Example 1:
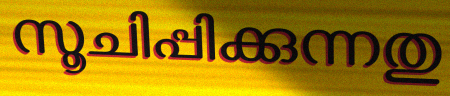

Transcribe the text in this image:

സൂചിപ്പിക്കുന്നതു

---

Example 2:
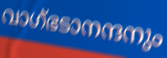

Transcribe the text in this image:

വാഗ്ഭടാനന്ദനും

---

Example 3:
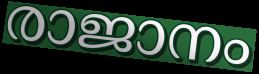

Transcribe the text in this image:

രാജാനം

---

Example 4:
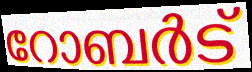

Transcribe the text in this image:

റോബർട്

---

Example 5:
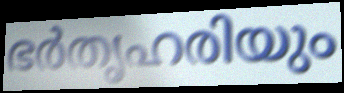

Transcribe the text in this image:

ഭർതൃഹരിയും